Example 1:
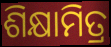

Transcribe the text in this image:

ଶିକ୍ଷାମିତ୍ର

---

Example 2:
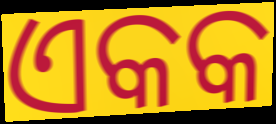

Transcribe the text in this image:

ଏକକ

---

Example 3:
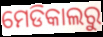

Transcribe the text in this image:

ମେଡିକାଲରୁ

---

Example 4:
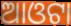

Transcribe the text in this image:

ଆଓଟା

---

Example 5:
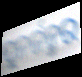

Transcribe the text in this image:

ପୁନର୍ଜନ୍ମର